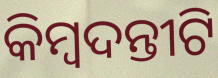
କିମ୍ୱଦନ୍ତୀଟି